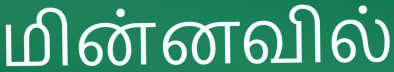
மின்னவில்